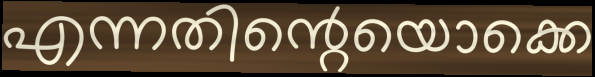
എന്നതിന്റെയൊക്കെ